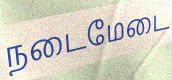
நடைமேடை